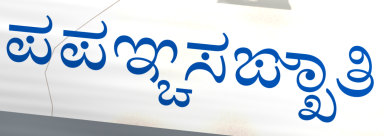
ಪಪಞ್ಚಸಙ್ಖಾತಿ